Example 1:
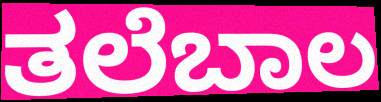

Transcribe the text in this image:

ತಲೆಬಾಲ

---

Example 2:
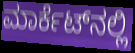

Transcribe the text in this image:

ಮಾರ್ಕೆಟ್‍ನಲ್ಲಿ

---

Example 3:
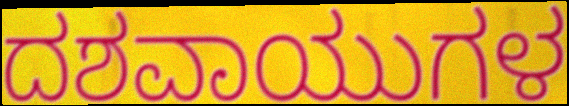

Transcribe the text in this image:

ದಶವಾಯುಗಳ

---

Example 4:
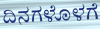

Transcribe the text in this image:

ದಿನಗಳೊಳಗೆ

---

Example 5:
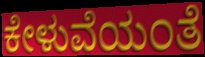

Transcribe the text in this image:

ಕೇಳುವೆಯಂತೆ